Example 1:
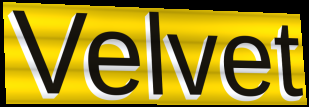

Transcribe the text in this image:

Velvet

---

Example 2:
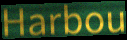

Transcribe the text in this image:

Harbou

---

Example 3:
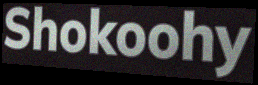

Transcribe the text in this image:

Shokoohy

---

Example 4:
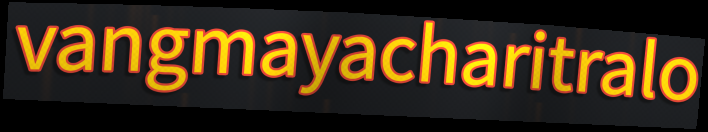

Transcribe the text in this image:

vangmayacharitralo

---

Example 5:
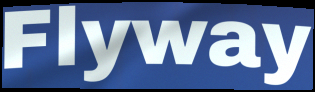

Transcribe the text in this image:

Flyway